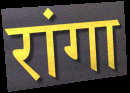
रांगा